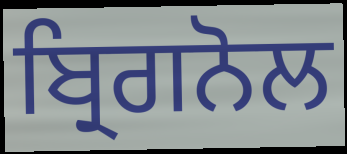
ਬ੍ਰਿਗਨੋਲ